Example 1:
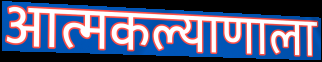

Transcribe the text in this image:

आत्मकल्याणाला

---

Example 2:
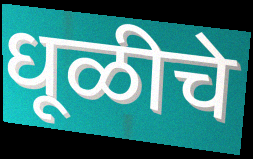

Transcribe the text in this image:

धूळीचे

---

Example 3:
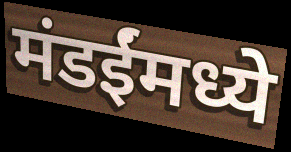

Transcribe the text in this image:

मंडईंमध्ये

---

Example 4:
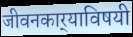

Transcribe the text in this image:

जीवनकार्याविषयी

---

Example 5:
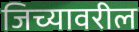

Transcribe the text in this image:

जिच्यावरील